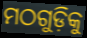
ମଠଗୁଡ଼ିକୁ